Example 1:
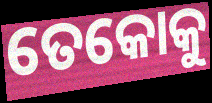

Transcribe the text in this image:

ତେକୋକୁ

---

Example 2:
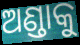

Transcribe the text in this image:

ଅଣ୍ଡାକୁ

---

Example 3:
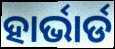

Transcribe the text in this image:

ହାର୍ଭାର୍ଡ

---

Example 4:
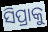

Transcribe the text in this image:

ସିପ୍ରାକୁ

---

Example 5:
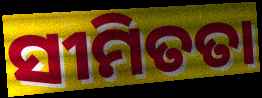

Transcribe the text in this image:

ସୀମିତତା